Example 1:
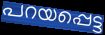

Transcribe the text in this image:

പറയപ്പെട്ട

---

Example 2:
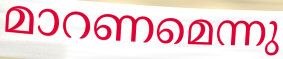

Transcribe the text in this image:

മാറണമെന്നു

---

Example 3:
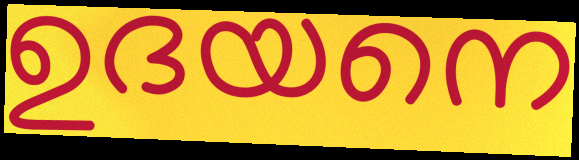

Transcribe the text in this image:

ഉദയനെ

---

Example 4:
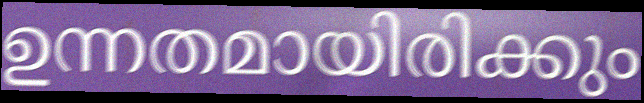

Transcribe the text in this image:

ഉന്നതമായിരിക്കും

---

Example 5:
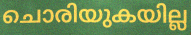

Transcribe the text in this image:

ചൊരിയുകയില്ല